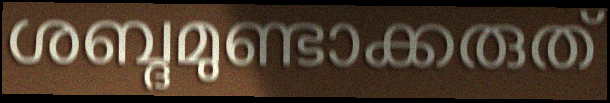
ശബ്ദമുണ്ടാക്കരുത്